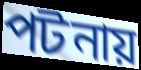
পটনায়